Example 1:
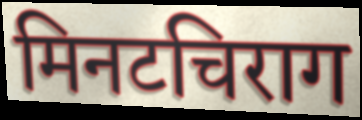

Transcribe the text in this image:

मिनटचिराग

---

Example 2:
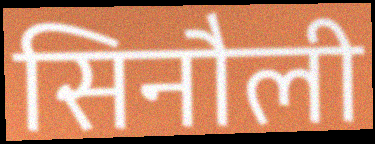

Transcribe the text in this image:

सिनौली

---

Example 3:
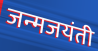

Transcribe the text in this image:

जन्मजयंती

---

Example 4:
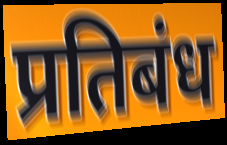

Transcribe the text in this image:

प्रतिबंध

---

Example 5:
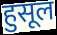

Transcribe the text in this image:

हुसूल